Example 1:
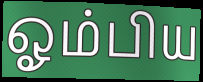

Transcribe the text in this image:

ஓம்பிய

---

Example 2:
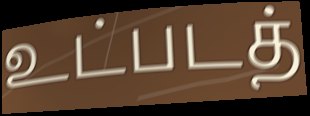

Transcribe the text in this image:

உட்படத்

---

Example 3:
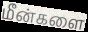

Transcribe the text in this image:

மீன்களை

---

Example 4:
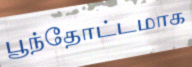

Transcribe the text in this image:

பூந்தோட்டமாக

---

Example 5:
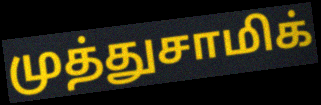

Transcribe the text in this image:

முத்துசாமிக்